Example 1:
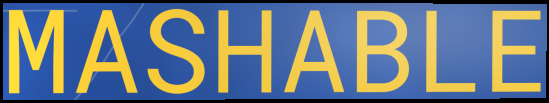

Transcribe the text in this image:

MASHABLE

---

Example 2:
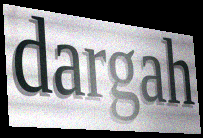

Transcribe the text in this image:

dargah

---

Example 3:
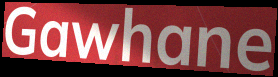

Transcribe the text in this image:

Gawhane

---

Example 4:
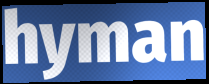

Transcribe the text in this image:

hyman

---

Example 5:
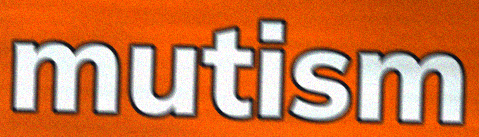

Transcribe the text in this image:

mutism